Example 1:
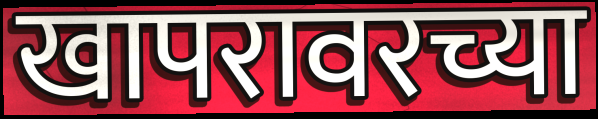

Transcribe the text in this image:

खापरावरच्या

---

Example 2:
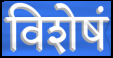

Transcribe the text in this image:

विशेषं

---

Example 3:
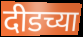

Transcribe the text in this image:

दीडच्या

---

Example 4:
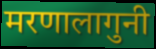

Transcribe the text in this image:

मरणालागुनी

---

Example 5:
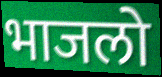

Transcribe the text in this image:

भाजलो